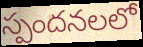
స్పందనలలో